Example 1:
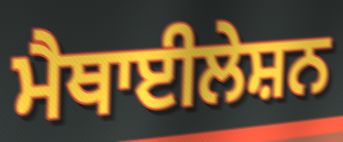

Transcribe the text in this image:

ਮੈਥਾਈਲੇਸ਼ਨ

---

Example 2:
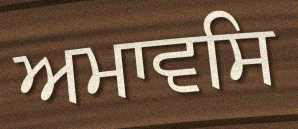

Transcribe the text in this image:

ਅਮਾਵਸਿ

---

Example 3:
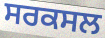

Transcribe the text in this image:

ਸਰਕਸਲ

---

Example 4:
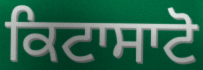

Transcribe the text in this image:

ਕਿਟਾਸਾਟੋ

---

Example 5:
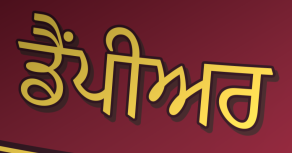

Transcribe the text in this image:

ਡੈਂਪੀਅਰ